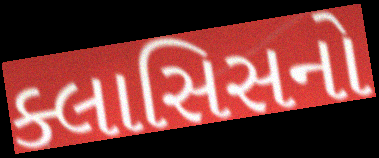
ક્લાસિસનો